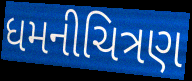
ધમનીચિત્રણ